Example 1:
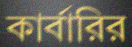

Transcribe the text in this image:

কার্বারির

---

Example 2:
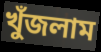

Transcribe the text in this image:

খুঁজলাম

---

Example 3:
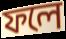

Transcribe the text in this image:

ফলে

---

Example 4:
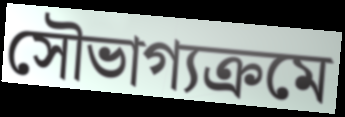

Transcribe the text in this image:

সৌভাগ্যক্রমে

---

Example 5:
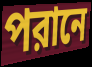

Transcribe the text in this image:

পরানে